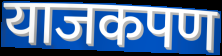
याजकपण